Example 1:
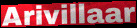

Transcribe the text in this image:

Arivillaar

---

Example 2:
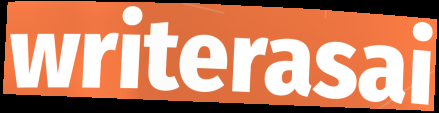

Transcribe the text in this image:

writerasai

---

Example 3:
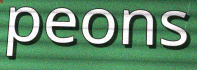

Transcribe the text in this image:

peons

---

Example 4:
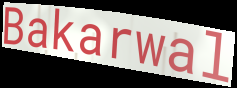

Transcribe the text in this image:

Bakarwal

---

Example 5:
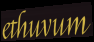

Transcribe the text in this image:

ethuvum